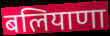
बलियाणा